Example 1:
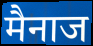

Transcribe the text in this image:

मैनाज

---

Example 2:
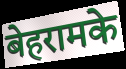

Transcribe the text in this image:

बेहरामके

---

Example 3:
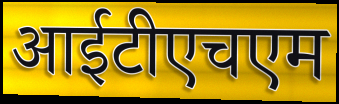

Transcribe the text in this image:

आईटीएचएम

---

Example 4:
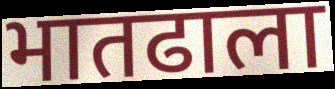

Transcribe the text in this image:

भातढाला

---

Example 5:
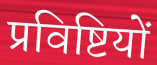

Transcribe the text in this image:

प्रविष्टियों